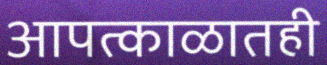
आपत्काळातही